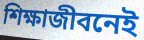
শিক্ষাজীবনেই